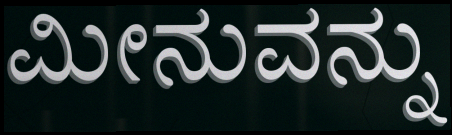
ಮೀನುವನ್ನು